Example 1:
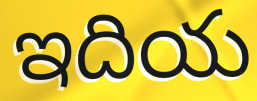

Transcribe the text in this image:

ఇదియ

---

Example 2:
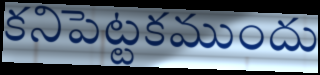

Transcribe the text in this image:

కనిపెట్టకముందు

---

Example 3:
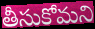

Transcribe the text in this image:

తీసుకోమని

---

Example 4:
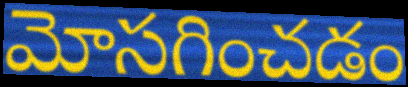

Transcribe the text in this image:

మోసగించడం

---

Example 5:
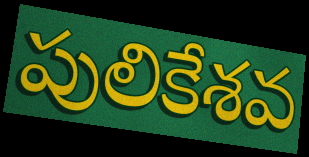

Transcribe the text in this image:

పులికేశవ